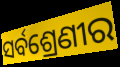
ସର୍ବଶ୍ରେଣୀର